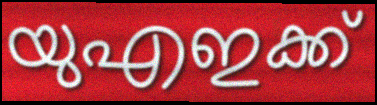
യുഎഇക്ക്